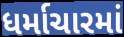
ધર્માચારમાં